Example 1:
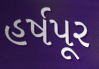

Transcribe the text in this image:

હર્ષપૂર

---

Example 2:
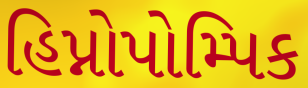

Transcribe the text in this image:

હિપ્નોપોમ્પિક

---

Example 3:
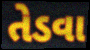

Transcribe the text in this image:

તેડવા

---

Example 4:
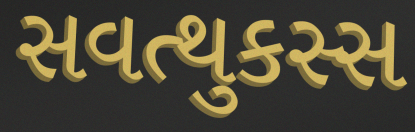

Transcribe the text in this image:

સવત્થુકસ્સ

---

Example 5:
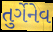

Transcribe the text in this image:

તુર્ગેનેવ